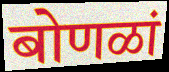
बोणळां